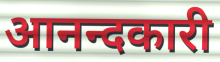
आनन्दकारी